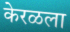
केरळला